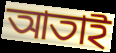
আতাই